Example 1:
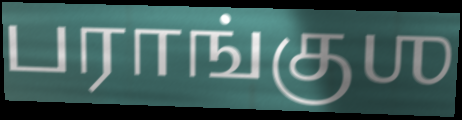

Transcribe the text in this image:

பராங்குஶ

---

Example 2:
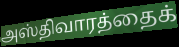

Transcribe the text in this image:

அஸ்திவாரத்தைக்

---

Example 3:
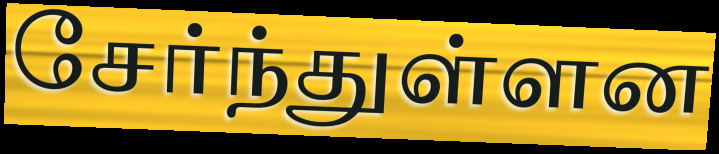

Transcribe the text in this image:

சேர்ந்துள்ளன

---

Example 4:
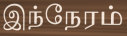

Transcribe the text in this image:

இந்நேரம்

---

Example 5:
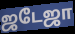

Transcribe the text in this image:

ஜடேஜா